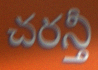
చరన్తీ